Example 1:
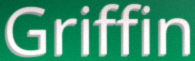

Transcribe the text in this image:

Griffin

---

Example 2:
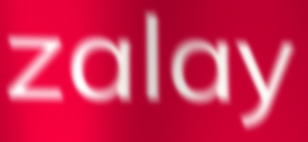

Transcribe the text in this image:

zalay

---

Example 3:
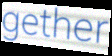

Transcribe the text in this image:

gether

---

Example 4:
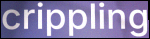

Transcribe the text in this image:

crippling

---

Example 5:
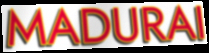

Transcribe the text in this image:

MADURAI